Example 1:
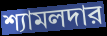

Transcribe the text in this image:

শ্যামলদার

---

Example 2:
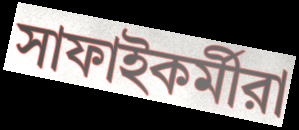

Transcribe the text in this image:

সাফাইকর্মীরা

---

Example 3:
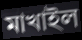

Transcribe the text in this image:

মাখাইল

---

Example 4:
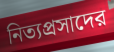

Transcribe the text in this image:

নিত্যপ্রসাদের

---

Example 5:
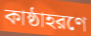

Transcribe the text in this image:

কাষ্ঠাহরণে